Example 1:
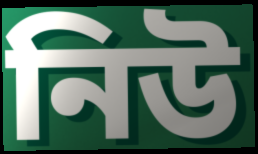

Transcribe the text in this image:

নিউ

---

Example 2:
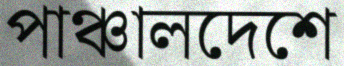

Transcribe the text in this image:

পাঞ্চালদেশে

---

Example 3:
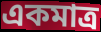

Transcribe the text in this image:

একমাত্র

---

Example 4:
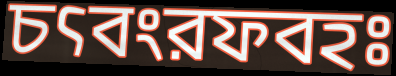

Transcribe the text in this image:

চৎবংরফবহঃ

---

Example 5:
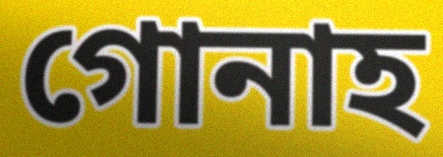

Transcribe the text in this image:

গোনাহ